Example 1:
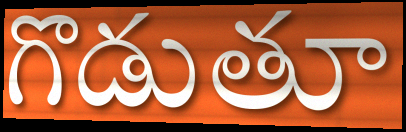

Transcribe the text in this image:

గొడుతూ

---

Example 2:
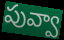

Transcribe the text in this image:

పువ్వా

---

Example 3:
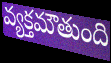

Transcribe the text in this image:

వ్యక్తమౌతుంది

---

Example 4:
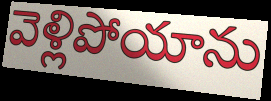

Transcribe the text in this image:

వెళ్లిపోయాను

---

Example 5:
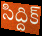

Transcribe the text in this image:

సిద్దిక్